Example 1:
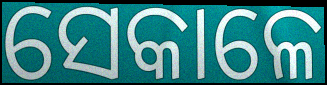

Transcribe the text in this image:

ସେକାଳେ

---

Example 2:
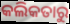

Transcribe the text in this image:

କଲିକତାରୁ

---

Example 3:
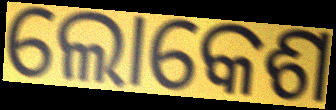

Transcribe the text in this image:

ଲୋକେଶ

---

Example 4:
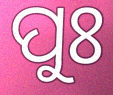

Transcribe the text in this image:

ପୁଃ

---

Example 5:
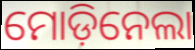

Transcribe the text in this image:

ମୋଡ଼ିନେଲା